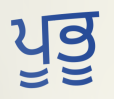
ਪੂਭੂ